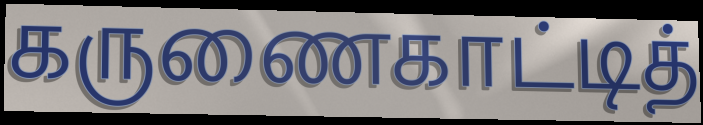
கருணைகாட்டித்